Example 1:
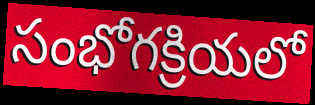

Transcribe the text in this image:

సంభోగక్రియలో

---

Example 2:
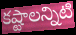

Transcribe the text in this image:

కష్టాలన్నిటి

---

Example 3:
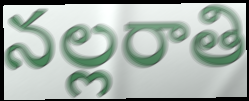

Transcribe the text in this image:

నల్లరాతి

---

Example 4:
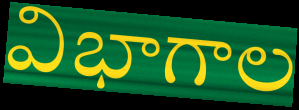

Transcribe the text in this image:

విభాగాల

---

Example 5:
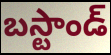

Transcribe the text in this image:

బస్టాండ్